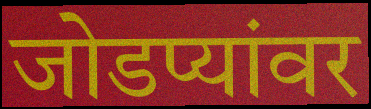
जोडप्यांवर